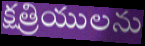
క్షత్రియులను